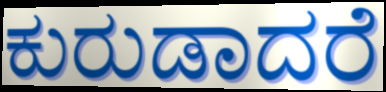
ಕುರುಡಾದರೆ